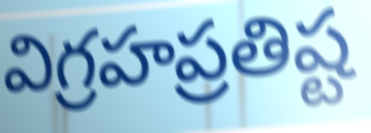
విగ్రహప్రతిష్ట